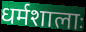
धर्मशालाः